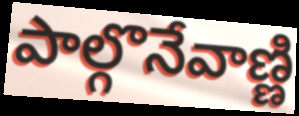
పాల్గొనేవాణ్ణి